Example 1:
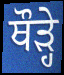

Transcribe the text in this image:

ਥੌੜ੍ਹੇ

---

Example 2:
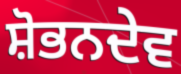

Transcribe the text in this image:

ਸ਼ੋਭਨਦੇਵ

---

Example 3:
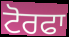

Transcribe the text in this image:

ਟੋਰਫਾ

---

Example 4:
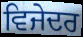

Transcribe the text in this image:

ਵਿਜੇਦਰ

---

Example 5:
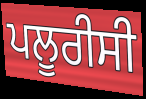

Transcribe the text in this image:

ਪਲੂਰੀਸੀ